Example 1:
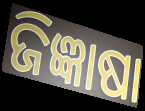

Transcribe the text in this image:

ଜିଜ୍ଞାଷା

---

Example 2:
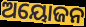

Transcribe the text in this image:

ଅୟୋଜନ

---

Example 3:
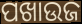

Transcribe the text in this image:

ପଖାଉଜ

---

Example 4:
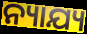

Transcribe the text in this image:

ନ୍ୟାଯ୍ୟ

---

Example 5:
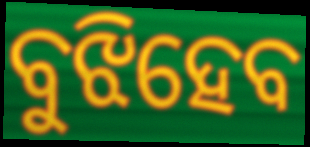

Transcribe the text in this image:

ବୁଝିହେବ